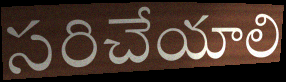
సరిచేయాలి